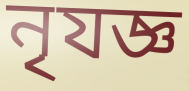
নৃযজ্ঞ